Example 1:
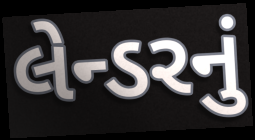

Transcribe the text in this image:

લેન્ડરનું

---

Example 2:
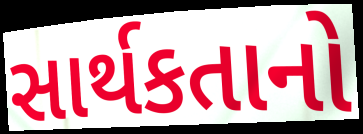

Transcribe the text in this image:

સાર્થકતાનો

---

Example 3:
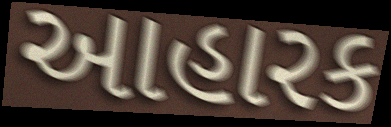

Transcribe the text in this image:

આહારક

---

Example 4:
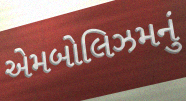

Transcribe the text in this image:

એમબોલિઝમનું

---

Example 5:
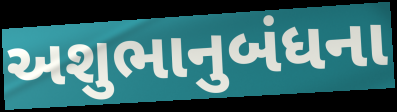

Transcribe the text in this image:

અશુભાનુબંધના